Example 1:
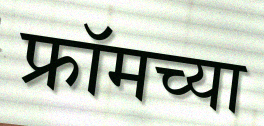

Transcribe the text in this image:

फ्रॉमच्या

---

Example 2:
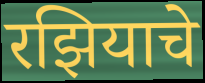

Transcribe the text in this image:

रझियाचे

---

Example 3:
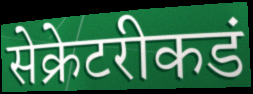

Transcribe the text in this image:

सेक्रेटरीकडं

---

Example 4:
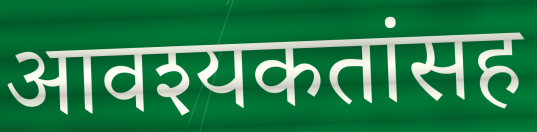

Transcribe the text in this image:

आवश्यकतांसह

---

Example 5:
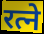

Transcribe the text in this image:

रत्ने